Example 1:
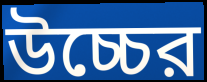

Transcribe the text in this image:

উচ্চের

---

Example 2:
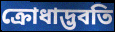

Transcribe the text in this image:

ক্রোধাদ্ভবতি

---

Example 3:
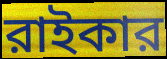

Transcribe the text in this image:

রাইকার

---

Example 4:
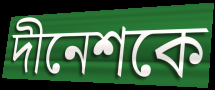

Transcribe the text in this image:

দীনেশকে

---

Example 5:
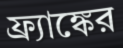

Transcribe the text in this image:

ফ্র্যাঙ্কের